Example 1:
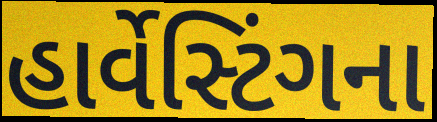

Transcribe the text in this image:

હાર્વેસ્ટિંગના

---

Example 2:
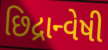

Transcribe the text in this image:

છિદ્રાન્વેષી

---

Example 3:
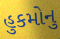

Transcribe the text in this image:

હુકમોનુ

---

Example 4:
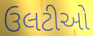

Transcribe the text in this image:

ઉલટીઓ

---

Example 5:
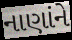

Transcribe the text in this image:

નાણાંને